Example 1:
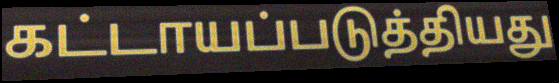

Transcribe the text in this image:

கட்டாயப்படுத்தியது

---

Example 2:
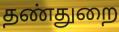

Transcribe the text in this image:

தண்துறை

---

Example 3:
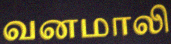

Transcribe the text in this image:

வனமாலி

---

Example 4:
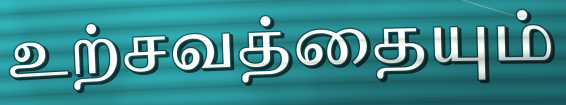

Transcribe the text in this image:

உற்சவத்தையும்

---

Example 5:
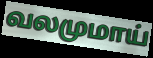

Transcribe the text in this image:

வலமுமாய்